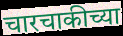
चारचाकीच्या